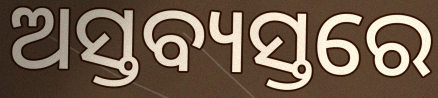
ଅସ୍ତବ୍ୟସ୍ତରେ